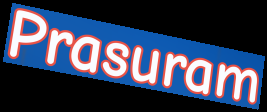
Prasuram